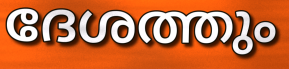
ദേശത്തും